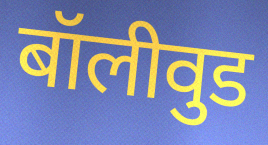
बॉलीवुड